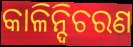
କାଳିନ୍ଦିଚରଣ